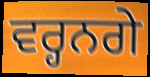
ਵਰ੍ਹਨਗੇ